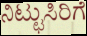
ನಿಟ್ಟುಸಿರಿಗೆ